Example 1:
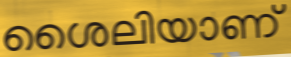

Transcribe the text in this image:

ശൈലിയാണ്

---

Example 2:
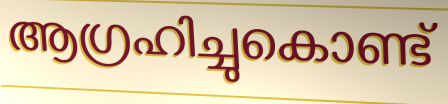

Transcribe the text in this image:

ആഗ്രഹിച്ചുകൊണ്ട്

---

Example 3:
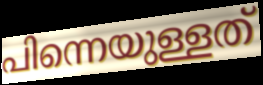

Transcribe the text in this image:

പിന്നെയുള്ളത്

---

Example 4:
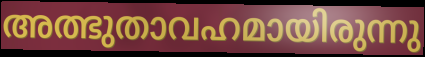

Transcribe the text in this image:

അത്ഭുതാവഹമായിരുന്നു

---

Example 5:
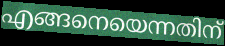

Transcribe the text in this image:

എങ്ങനെയെന്നതിന്